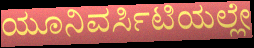
ಯೂನಿವರ್ಸಿಟಿಯಲ್ಲೇ